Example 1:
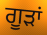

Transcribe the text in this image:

ਗੂੜਾਂ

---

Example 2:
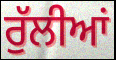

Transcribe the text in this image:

ਰੁੱਲੀਆਂ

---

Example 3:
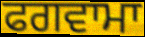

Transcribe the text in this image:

ਫਗਵਾਮਾ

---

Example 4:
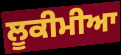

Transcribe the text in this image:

ਲੂਕੀਮੀਆ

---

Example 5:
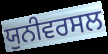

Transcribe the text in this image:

ਯੁਨੀਵਰਸਲ